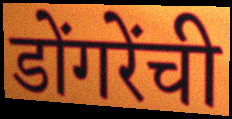
डोंगरेंची